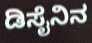
ಡಿಸೈನಿನ